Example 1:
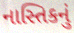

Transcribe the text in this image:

નાસ્તિકનું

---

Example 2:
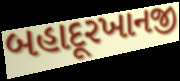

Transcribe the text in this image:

બહાદૂરખાનજી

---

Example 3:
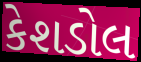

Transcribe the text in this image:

કેશડોલ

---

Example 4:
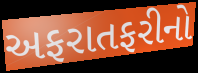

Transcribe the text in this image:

અફરાતફરીનો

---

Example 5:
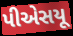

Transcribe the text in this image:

પીએસયૂ